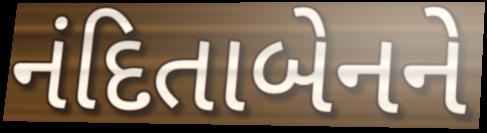
નંદિતાબેનને